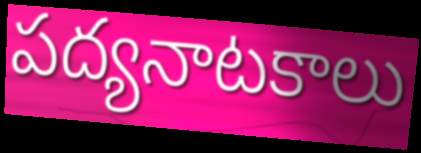
పద్యనాటకాలు